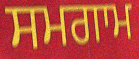
ਸਮਗਾਮ